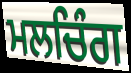
ਮਲਚਿੰਗ